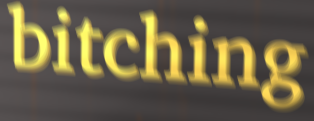
bitching